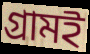
গ্রামই